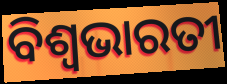
ବିଶ୍ୱଭାରତୀ